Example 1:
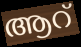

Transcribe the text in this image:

ആറ്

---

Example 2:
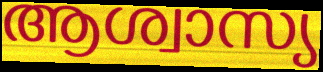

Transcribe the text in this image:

ആശ്വാസ്യ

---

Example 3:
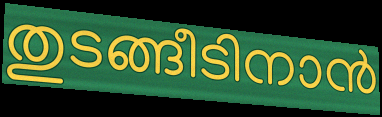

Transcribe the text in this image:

തുടങ്ങീടിനാൻ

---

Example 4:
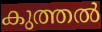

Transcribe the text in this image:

കുത്തൽ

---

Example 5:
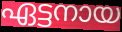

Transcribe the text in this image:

ഏട്ടനായ